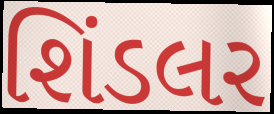
શિંડલર